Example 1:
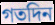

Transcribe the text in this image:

গতদিন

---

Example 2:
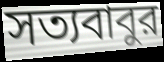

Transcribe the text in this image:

সত্যবাবুর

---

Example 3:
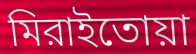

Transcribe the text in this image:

মিরাইতোয়া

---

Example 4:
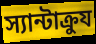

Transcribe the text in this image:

স্যান্টাক্রুয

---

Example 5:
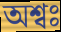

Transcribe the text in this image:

অশ্বঃ